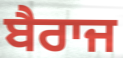
ਬੈਰਾਜ